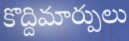
కొద్దిమార్పులు